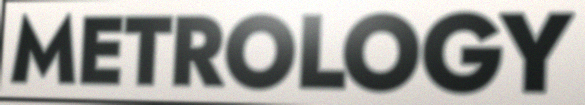
METROLOGY